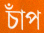
চাঁপ